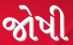
જોષી